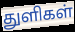
துளிகள்